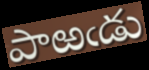
పాఱఁడు